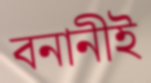
বনানীই